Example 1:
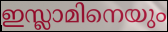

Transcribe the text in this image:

ഇസ്ലാമിനെയും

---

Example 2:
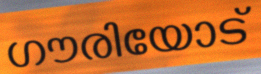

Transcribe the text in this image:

ഗൗരിയോട്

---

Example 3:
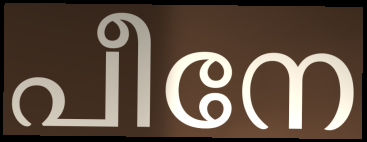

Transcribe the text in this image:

പീനേ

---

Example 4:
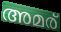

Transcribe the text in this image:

അമര്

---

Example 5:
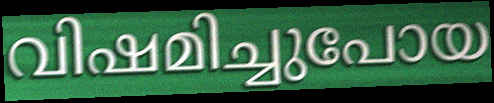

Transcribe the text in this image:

വിഷമിച്ചുപോയ